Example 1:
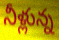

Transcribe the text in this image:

నీళ్లున్న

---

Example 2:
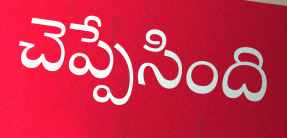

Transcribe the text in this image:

చెప్పేసింది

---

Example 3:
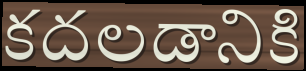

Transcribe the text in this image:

కదలడానికి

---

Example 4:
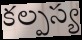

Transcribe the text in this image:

కల్పస్య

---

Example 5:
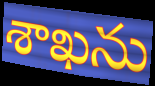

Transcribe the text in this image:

శాఖను